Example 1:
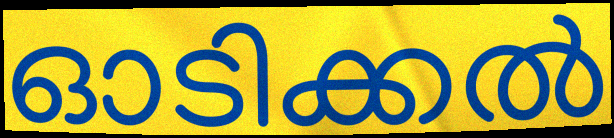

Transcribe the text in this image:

ഓടിക്കൽ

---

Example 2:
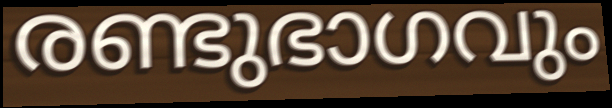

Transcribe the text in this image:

രണ്ടുഭാഗവും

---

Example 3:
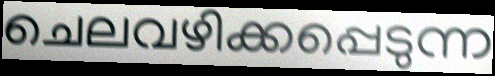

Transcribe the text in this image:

ചെലവഴിക്കപ്പെടുന്ന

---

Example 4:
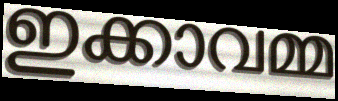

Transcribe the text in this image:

ഇക്കാവമ്മ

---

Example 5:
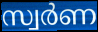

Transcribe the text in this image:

സ്വർണ